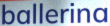
ballerina